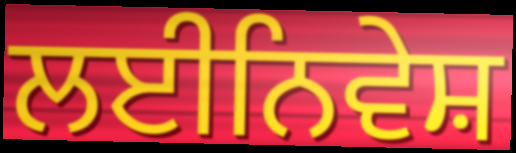
ਲਈਨਿਵੇਸ਼